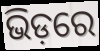
ଭିଡ଼ରେ